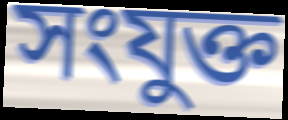
সংযুক্ত